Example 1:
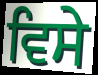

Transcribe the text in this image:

ਵਿਸੇ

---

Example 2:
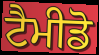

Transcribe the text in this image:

ਟੈਮੀਡੋ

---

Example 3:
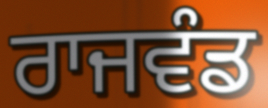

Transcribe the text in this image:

ਰਾਜਵੰਡ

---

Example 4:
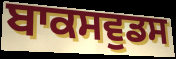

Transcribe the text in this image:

ਬਾਕਸਵੁਡਸ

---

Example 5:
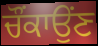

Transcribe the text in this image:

ਚੌਂਕਾਉਂਣ